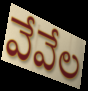
వేవేల